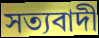
সত্যবাদী